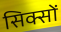
सिक्सों